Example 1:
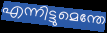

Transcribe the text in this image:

എന്നിട്ടുമെന്തേ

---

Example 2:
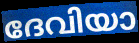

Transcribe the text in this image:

ദേവിയാ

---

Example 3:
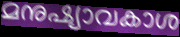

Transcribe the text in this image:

മനുഷ്യാവകാശ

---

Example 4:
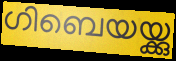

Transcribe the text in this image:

ഗിബെയയ്ക്കു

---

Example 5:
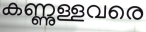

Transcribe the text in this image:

കണ്ണുള്ളവരെ